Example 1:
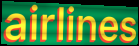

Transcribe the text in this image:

airlines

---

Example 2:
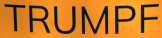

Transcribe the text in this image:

TRUMPF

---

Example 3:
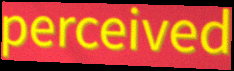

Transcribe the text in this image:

perceived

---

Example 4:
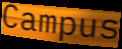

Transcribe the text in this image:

Campus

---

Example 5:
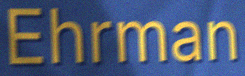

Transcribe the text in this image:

Ehrman